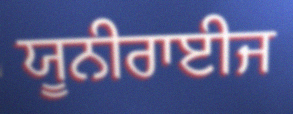
ਯੂਨੀਰਾਈਜ